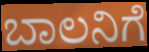
ಬಾಲನಿಗೆ